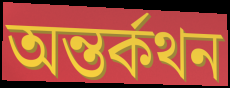
অন্তর্কথন